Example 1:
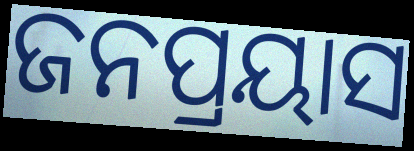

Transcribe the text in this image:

ଜନପ୍ରୟାସ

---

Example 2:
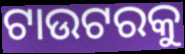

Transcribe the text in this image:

ଟାଉଟରକୁ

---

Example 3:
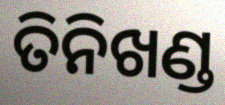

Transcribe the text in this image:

ତିନିଖଣ୍ଡ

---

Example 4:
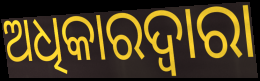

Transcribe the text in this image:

ଅଧିକାରଦ୍ୱାରା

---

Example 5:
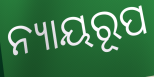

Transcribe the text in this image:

ନ୍ୟାୟରୂପ